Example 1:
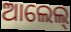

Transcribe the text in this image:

ଆଲେଲ୍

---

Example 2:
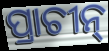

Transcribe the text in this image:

ପ୍ରାଚୀନ୍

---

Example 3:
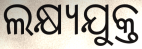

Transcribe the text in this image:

ଲକ୍ଷ୍ୟଯୁକ୍ତ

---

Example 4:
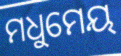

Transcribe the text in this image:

ମଧୁମେୟ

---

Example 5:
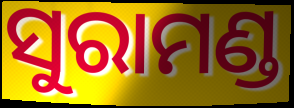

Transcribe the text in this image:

ସୁରାମଣ୍ଡ